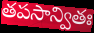
తపసాన్వితః